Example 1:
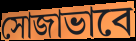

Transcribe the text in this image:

সোজাভাবে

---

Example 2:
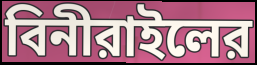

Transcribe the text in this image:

বিনীরাইলের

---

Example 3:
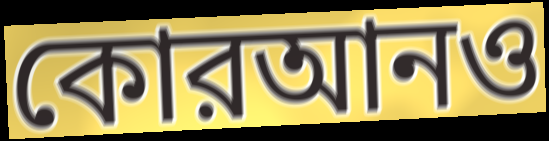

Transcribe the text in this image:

কোরআনও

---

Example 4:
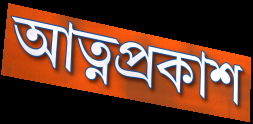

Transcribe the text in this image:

আত্নপ্রকাশ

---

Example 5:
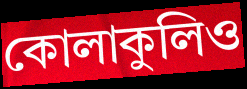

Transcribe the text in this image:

কোলাকুলিও